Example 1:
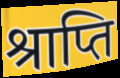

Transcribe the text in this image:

श्राप्ति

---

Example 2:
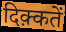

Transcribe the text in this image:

दिक़्कतें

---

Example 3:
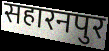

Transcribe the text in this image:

सहारनपुर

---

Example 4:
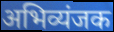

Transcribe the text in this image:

अभिव्यंजक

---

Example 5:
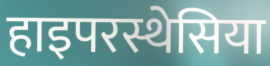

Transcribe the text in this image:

हाइपरस्थेसिया